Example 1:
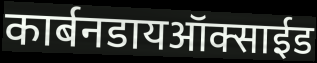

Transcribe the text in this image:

कार्बनडायऑक्साईड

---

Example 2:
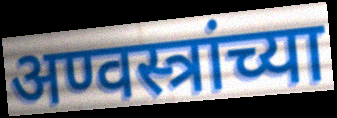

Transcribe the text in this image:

अण्वस्त्रांच्या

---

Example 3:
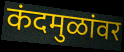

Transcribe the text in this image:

कंदमुळांवर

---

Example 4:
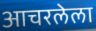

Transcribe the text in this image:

आचरलेला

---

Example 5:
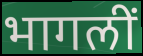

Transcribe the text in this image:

भागलीं